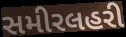
સમીરલહરી